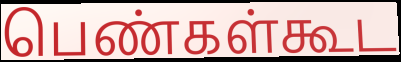
பெண்கள்கூட